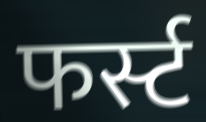
फर्स्‍ट